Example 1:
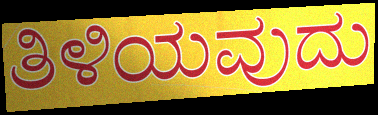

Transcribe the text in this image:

ತಿಳಿಯವುದು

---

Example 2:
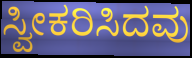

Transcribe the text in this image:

ಸ್ವೀಕರಿಸಿದವು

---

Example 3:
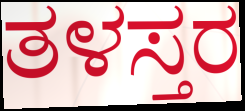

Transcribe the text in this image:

ತಳಸ್ತರ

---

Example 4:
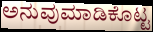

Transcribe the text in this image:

ಅನುವುಮಾಡಿಕೊಟ್ಟ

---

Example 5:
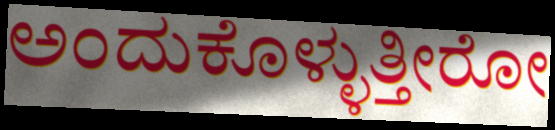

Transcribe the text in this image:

ಅಂದುಕೊಳ್ಳುತ್ತೀರೋ